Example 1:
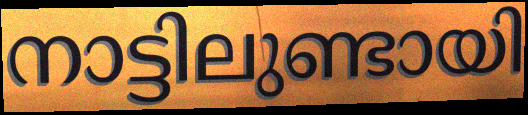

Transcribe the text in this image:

നാട്ടിലുണ്ടായി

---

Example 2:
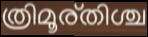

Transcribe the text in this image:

ത്രിമൂര്തിശ്ച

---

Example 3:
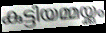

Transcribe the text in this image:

കുട്ടിയമ്മയ്ക്കും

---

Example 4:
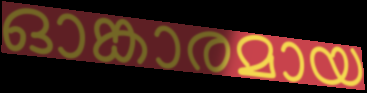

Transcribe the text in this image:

ഓങ്കാരമായ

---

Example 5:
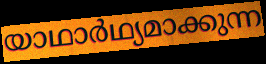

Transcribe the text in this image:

യാഥാർഥ്യമാക്കുന്ന